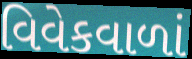
વિવેકવાળાં